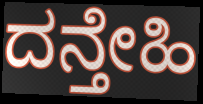
ದನ್ತೇಹಿ